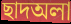
ছাদঅলা